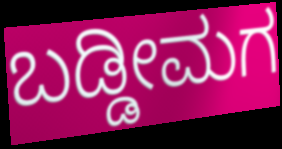
ಬಡ್ಡೀಮಗ